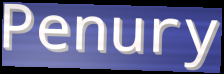
Penury